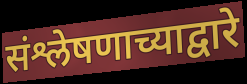
संश्लेषणाच्याद्वारे